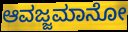
ಆವಜ್ಜಮಾನೋ